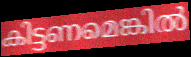
കിട്ടണമെങ്കിൽ